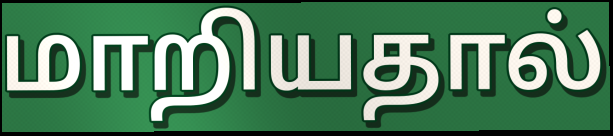
மாறியதால்